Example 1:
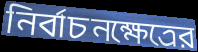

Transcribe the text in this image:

নির্বাচনক্ষেত্রের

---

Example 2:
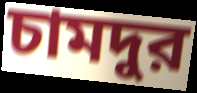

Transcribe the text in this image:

চামদুর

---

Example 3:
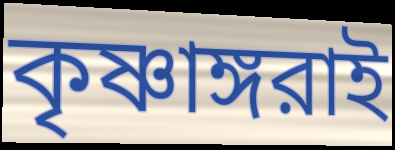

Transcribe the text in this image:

কৃষ্ণাঙ্গরাই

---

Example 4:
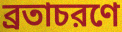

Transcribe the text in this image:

ব্রতাচরণে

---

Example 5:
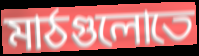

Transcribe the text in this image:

মাঠগুলোতে